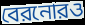
বেরনোরও